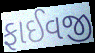
ફાઈવજી